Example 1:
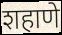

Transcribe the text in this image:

शहाणे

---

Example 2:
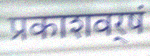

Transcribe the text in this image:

प्रकाशवर्षं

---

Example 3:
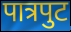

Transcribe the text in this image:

पात्रपुट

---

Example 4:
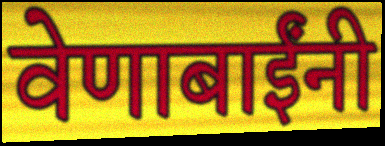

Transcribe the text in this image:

वेणाबाईंनी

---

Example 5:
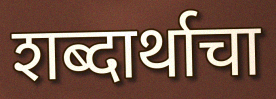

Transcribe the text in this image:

शब्दार्थाचा